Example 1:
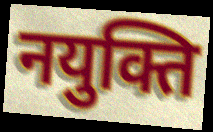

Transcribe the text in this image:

नयुक्ति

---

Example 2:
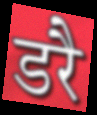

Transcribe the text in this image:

डरै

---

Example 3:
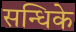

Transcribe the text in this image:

सन्धिके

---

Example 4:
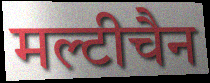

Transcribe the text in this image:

मल्टीचैन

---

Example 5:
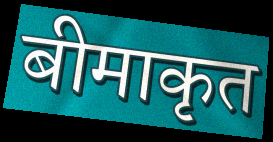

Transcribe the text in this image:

बीमाकृत